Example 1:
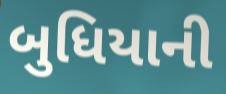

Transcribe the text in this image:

બુધિયાની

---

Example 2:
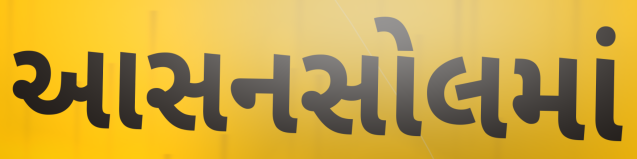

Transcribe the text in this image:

આસનસોલમાં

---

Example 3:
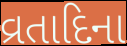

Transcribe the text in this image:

વ્રતાદિના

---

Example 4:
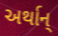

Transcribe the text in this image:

અર્થાન્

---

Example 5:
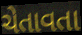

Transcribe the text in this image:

ચેતાવતા